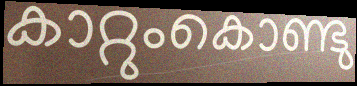
കാറ്റുംകൊണ്ടു